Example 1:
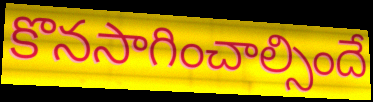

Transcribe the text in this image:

కొనసాగించాల్సిందే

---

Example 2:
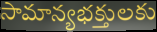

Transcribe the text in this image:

సామాన్యభక్తులకు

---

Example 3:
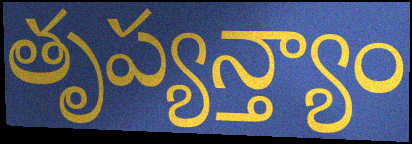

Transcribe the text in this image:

తృప్యన్త్యాం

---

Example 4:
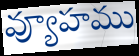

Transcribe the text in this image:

వ్యూహము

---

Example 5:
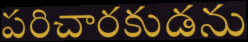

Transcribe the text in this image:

పరిచారకుడను